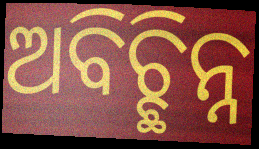
ଅବିଚ୍ଛିନ୍ନ